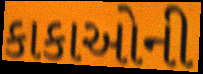
કાકાઓની